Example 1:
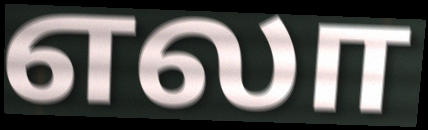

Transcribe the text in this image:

எலா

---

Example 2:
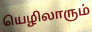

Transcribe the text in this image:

யெழிலாரும்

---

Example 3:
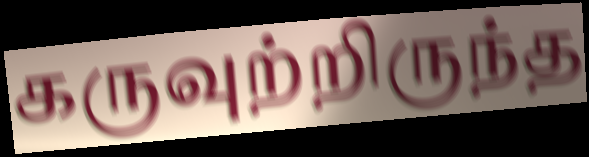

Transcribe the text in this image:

கருவுற்றிருந்த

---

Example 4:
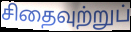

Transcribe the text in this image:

சிதைவுற்றுப்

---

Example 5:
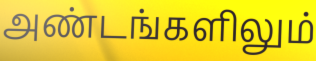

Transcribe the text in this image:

அண்டங்களிலும்